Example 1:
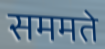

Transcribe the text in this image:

सममते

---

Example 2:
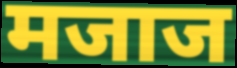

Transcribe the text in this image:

मजाज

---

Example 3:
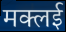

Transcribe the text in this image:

मक्लई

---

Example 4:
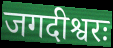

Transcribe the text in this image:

जगदीश्वरः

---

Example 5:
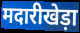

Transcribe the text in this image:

मदारीखेड़ा